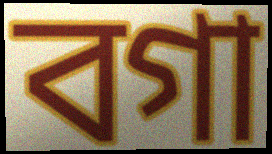
বগা